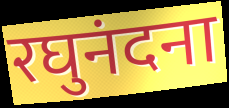
रघुनंदना